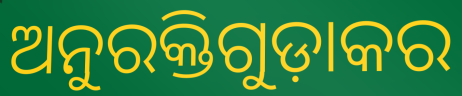
ଅନୁରକ୍ତିଗୁଡ଼ାକର